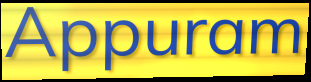
Appuram